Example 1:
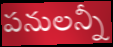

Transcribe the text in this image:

పనులన్నీ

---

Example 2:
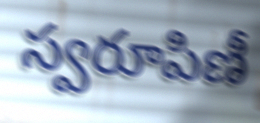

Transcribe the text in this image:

స్వరూపిణీ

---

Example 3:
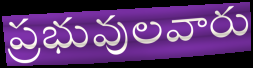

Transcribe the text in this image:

ప్రభువులవారు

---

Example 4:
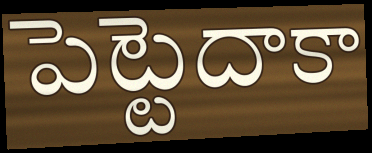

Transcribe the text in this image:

పెట్టెదాకా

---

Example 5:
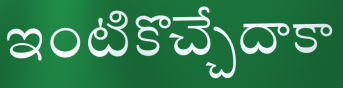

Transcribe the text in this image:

ఇంటికొచ్చేదాకా